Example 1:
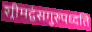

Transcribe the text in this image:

श्रीमद्वंसगुरुपध्दति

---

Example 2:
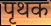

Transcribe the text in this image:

पृथक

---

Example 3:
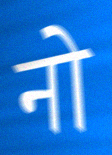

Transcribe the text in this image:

नो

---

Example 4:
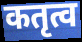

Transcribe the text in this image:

कतृत्व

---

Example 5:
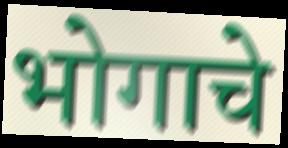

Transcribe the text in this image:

भोगाचे